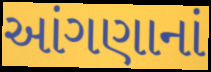
આંગણાનાં